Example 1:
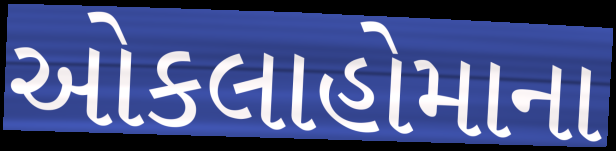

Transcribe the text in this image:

ઓકલાહોમાના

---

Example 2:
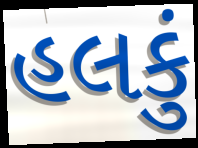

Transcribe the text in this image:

હલકું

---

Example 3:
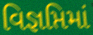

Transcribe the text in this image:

વિજ્ઞપ્તિમાં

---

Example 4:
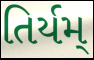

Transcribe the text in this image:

તિર્યમ્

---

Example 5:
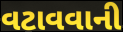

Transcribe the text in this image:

વટાવવાની